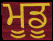
ਮੂਡੂ